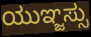
ಯುಞ್ಜಸ್ಸು